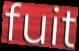
fuit